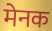
मेनक